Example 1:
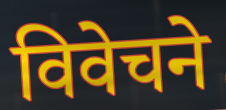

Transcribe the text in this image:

विवेचने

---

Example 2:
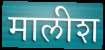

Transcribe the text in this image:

मालीश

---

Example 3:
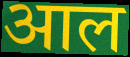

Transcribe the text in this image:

आल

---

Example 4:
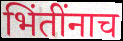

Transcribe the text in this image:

भिंतींनाच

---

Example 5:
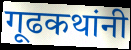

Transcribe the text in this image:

गूढकथांनी